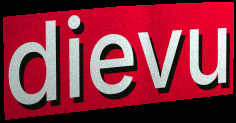
dievu